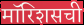
मॉरिशसची